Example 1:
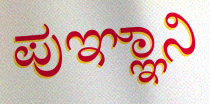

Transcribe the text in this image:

ಪುಞ್ಞಾನಿ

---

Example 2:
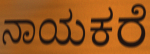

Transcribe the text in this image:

ನಾಯಕರೆ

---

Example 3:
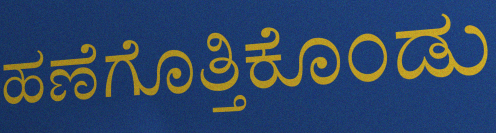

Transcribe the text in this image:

ಹಣೆಗೊತ್ತಿಕೊಂಡು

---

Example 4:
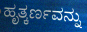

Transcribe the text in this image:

ಹೃತ್ಕರ್ಣವನ್ನು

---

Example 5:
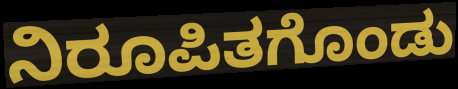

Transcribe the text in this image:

ನಿರೂಪಿತಗೊಂಡು